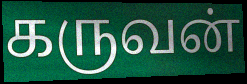
கருவன்